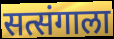
सत्संगाला